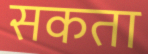
सकता